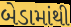
બેડામાંથી